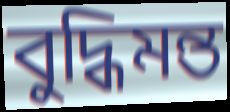
বুদ্ধিমন্ত